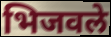
भिजवले